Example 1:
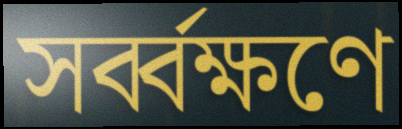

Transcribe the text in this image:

সর্ব্বক্ষণে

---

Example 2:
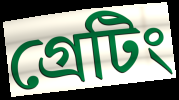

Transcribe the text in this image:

গ্রেটিং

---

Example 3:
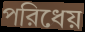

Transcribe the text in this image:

পরিধেয়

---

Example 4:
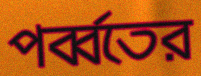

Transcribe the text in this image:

পর্ব্বতের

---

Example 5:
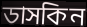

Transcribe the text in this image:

ডাসকিন